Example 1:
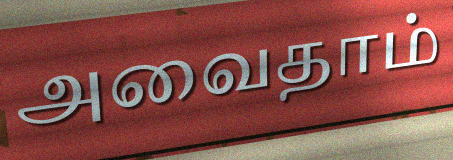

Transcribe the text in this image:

அவைதாம்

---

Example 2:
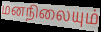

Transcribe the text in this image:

மனநிலையும்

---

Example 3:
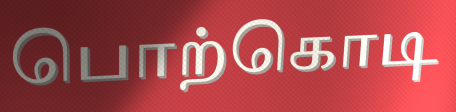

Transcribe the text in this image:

பொற்கொடி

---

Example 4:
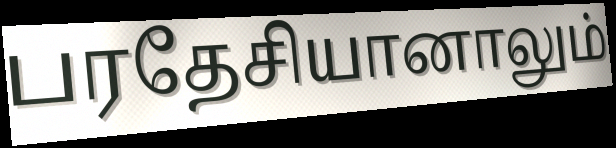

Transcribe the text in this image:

பரதேசியானாலும்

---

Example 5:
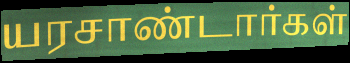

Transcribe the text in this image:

யரசாண்டார்கள்